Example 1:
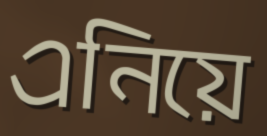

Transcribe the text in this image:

এনিয়ে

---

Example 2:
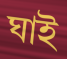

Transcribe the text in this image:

ঘাই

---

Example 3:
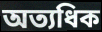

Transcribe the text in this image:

অত্যধিক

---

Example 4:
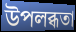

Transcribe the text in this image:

উপলব্ধতা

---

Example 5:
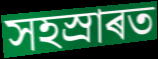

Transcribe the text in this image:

সহস্ৰাৰত